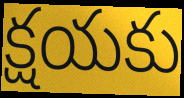
క్షయకు